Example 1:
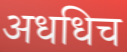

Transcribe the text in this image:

अधधिच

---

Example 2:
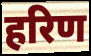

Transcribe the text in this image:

हरिण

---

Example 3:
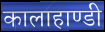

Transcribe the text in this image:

कालाहाण्डी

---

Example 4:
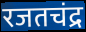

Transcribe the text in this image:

रजतचंद्र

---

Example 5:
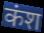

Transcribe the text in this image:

कंश